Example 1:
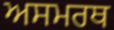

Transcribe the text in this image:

ਅਸਮਰਥ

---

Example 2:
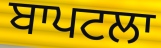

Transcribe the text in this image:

ਬਾਪਟਲਾ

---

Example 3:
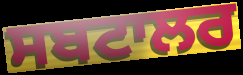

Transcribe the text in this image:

ਸਬਟਾਲਰ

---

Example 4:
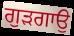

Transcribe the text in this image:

ਗੁੜਗਾਉ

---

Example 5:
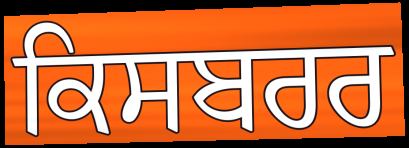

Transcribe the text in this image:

ਕਿਸਬਰਰ